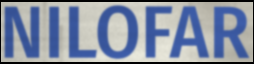
NILOFAR